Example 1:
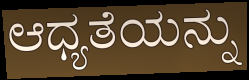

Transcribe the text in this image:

ಆಧ್ಯತೆಯನ್ನು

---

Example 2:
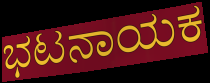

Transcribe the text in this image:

ಭಟನಾಯಕ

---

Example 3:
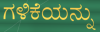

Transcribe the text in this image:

ಗಳಿಕೆಯನ್ನು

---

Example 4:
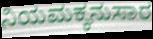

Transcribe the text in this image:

ನಿಯಮಕ್ಕನುಸಾರ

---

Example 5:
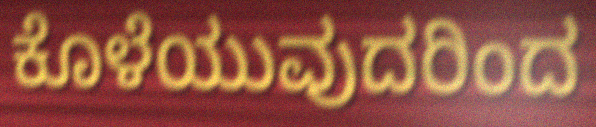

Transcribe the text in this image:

ಕೊಳೆಯುವುದರಿಂದ